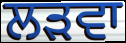
ਲੜਵਾ